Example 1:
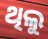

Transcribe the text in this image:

ଥିଲୁ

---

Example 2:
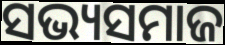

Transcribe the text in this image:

ସଭ୍ୟସମାଜ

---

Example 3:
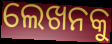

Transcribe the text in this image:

ଲେଖନକୁ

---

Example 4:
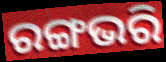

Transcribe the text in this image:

ରଙ୍ଗଭରି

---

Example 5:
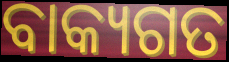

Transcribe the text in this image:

ବାକ୍ୟଗତ